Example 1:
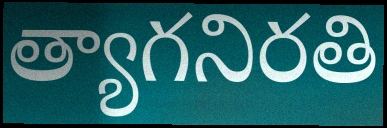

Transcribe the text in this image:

త్యాగనిరతి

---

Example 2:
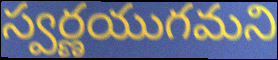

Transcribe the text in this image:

స్వర్ణయుగమని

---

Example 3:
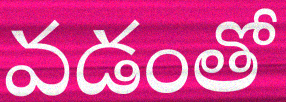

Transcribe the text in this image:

వడంతో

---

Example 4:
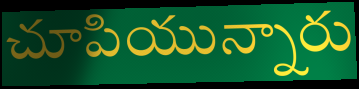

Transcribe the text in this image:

చూపియున్నారు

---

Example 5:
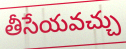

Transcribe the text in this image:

తీసేయవచ్చు